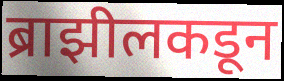
ब्राझीलकडून